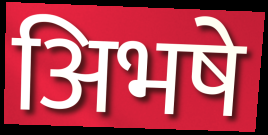
अिभषे